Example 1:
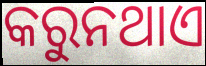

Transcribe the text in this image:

କରୁନଥାଏ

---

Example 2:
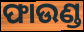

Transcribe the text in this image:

ଫାଉଣ୍ଡ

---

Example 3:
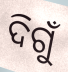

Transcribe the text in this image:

ଦିଗୁଁ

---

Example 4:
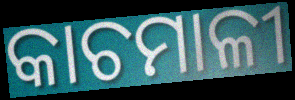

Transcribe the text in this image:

କାଚମାଳୀ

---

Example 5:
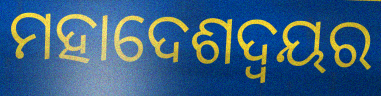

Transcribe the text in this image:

ମହାଦେଶଦ୍ଵୟର